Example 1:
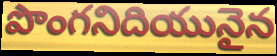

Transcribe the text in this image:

పొంగనిదియునైన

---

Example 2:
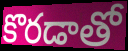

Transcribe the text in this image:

కొరడాతో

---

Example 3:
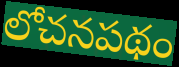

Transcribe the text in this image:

లోచనపథం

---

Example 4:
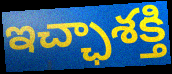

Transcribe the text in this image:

ఇచ్ఛాశక్తి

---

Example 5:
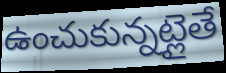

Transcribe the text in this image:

ఉంచుకున్నట్లైతే